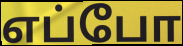
எப்போ